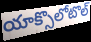
యాక్సొలోటొల్